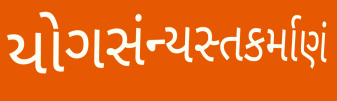
યોગસંન્યસ્તકર્માણં